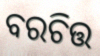
ବରଚିତ୍ତ